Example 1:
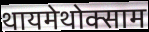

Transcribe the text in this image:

थायमेथोक्साम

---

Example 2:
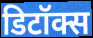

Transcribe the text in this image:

डिटॉक्स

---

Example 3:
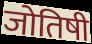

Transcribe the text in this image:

जोतिषी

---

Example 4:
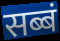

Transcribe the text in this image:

सब्बं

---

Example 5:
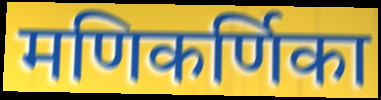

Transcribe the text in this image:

मणिकर्णिका